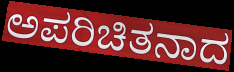
ಅಪರಿಚಿತನಾದ